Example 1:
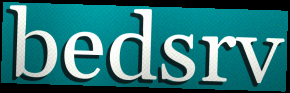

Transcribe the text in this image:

bedsrv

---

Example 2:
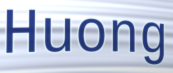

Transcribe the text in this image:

Huong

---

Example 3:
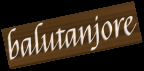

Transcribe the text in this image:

balutanjore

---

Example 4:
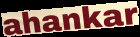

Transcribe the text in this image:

ahankar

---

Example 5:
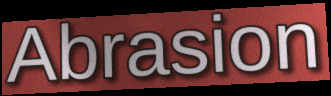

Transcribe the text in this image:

Abrasion